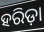
ହରିଡ଼ା